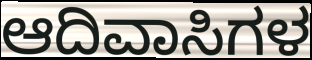
ಆದಿವಾಸಿಗಳ